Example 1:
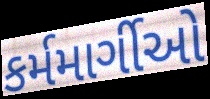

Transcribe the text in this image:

કર્મમાર્ગીઓ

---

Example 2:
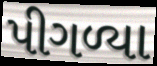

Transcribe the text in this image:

પીગળ્યા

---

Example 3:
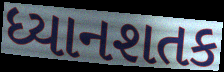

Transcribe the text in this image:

ધ્યાનશતક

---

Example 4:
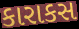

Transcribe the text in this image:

કારાકસ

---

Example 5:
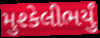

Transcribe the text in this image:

મુશ્કેલીભર્યું